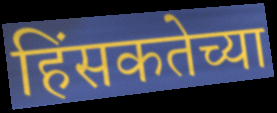
हिंसकतेच्या